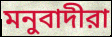
মনুবাদীরা